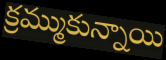
క్రమ్ముకున్నాయి